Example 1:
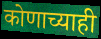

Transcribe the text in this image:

कोणाच्याही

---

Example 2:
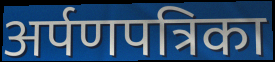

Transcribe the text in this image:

अर्पणपत्रिका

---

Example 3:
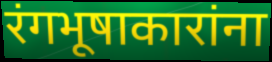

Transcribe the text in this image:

रंगभूषाकारांना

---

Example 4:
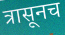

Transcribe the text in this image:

त्रासूनच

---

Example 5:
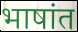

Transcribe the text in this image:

भाषांत